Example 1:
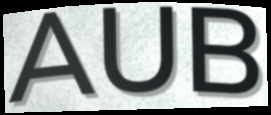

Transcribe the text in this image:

AUB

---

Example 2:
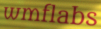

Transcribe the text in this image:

wmflabs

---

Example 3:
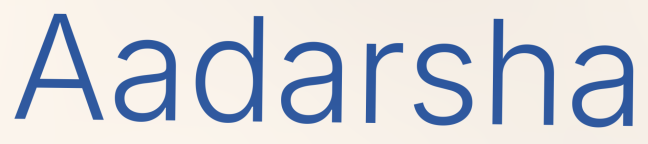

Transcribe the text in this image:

Aadarsha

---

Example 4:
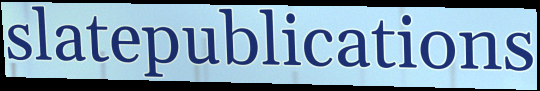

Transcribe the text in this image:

slatepublications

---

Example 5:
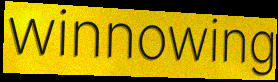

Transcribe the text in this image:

winnowing